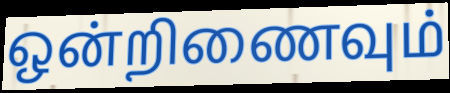
ஒன்றிணைவும்